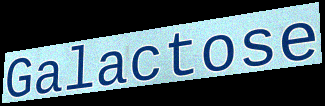
Galactose